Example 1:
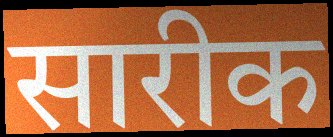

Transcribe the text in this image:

सारीक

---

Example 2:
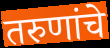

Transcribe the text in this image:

तरुणांचे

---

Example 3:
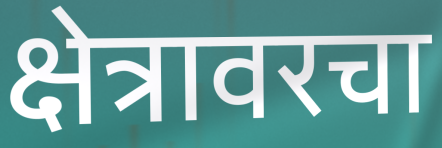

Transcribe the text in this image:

क्षेत्रावरचा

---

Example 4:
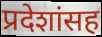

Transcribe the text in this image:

प्रदेशांसह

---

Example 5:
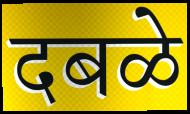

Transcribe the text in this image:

दबळे